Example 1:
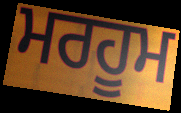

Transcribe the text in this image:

ਮਰਹੂਮ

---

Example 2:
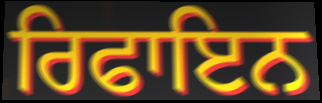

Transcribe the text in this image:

ਰਿਫਾਇਨ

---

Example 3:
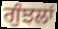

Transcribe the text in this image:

ਗੁੰਝਲਾਂ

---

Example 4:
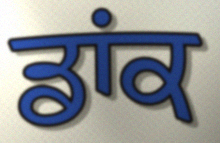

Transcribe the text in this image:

ਡਾਂਕ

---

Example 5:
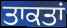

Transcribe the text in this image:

ਤਾਕਤਾਂ